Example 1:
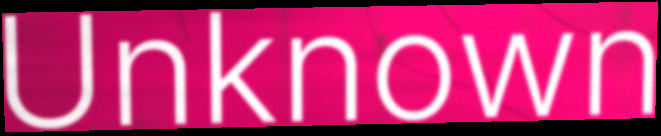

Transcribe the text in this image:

Unknown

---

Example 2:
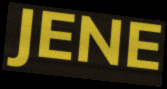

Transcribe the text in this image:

JENE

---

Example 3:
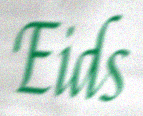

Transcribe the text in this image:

Eids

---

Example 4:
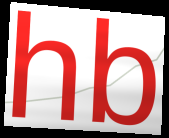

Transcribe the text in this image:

hb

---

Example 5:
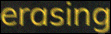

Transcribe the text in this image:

erasing